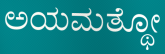
ಅಯಮತ್ಥೋ